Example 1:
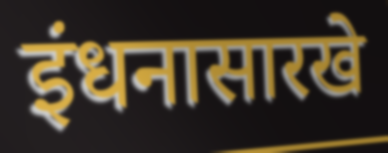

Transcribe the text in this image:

इंधनासारखे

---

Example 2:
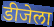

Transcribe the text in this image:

डीजेला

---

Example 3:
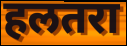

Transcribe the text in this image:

हलतरा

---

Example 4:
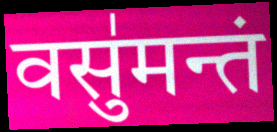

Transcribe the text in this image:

वसु॑मन्तं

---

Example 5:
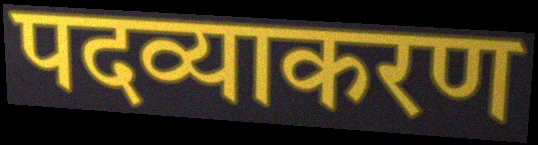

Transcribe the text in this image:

पदव्याकरण